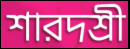
শারদশ্রী